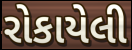
રોકાયેલી